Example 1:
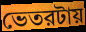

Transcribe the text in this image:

ভেতরটায়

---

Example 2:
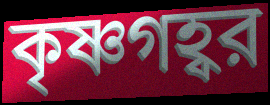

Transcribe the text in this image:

কৃষ্ণগহ্বর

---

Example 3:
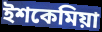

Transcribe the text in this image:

ইশকেমিয়া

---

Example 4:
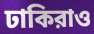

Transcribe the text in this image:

ঢাকিরাও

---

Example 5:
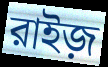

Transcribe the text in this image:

রাইজ়